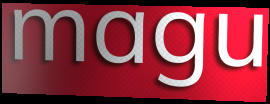
magu